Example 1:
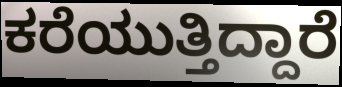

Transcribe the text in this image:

ಕರೆಯುತ್ತಿದ್ದಾರೆ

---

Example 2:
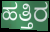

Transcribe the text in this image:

ಹತ್ತಿರ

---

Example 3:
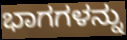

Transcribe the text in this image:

ಭಾಗಗಳನ್ನು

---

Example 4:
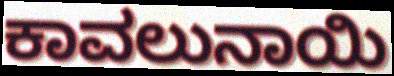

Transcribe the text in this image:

ಕಾವಲುನಾಯಿ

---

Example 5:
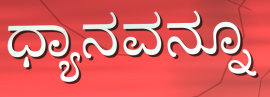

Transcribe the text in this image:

ಧ್ಯಾನವನ್ನೂ